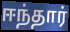
ஈந்தார்